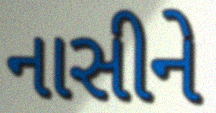
નાસીને